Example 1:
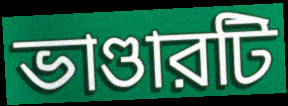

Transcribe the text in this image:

ভাণ্ডারটি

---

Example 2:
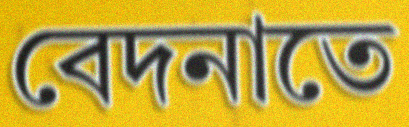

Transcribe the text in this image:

বেদনাতে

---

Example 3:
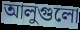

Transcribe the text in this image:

আলুগুলো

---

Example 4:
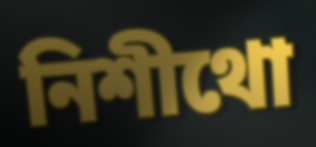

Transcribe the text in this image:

নিশীথো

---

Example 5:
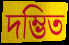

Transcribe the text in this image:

দম্ভিত